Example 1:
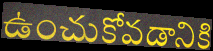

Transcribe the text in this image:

ఉంచుకోవడానికి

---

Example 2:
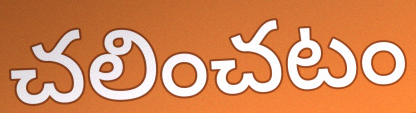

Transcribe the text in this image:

చలించటం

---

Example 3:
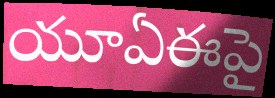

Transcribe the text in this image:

యూఏఈపై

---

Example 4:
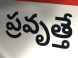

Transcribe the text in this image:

ప్రవృత్తే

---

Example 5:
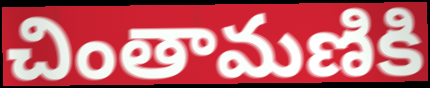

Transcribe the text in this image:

చింతామణికి